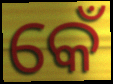
କେଁ